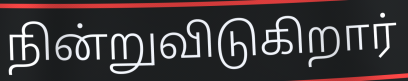
நின்றுவிடுகிறார்